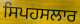
ਸਿਪਹਸਲਾਰ